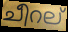
ചീറല്